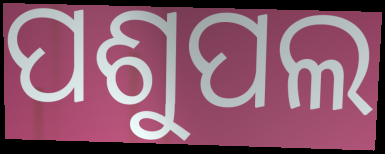
ପଶୁପଲ